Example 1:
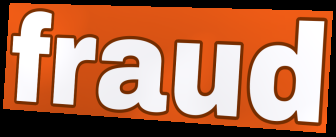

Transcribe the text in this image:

fraud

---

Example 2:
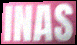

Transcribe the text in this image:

INAS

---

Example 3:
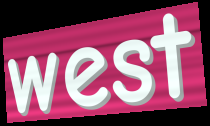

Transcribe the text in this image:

west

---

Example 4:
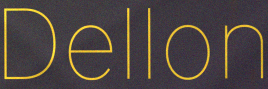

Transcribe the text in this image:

Dellon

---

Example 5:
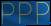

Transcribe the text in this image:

PPP